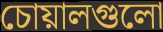
চোয়ালগুলো